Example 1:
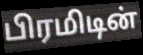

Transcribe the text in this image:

பிரமிடின்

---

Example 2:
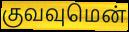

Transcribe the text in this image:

குவவுமென்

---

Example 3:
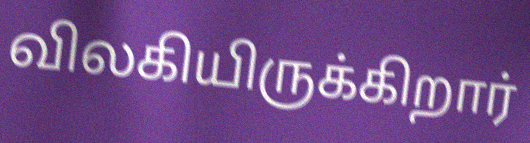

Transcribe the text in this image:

விலகியிருக்கிறார்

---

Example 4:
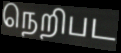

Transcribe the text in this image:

நெறிபட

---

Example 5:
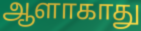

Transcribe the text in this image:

ஆளாகாது